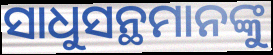
ସାଧୁସନ୍ଥମାନଙ୍କୁ